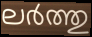
ലർത്തു